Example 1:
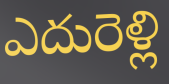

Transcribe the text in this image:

ఎదురెళ్లి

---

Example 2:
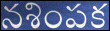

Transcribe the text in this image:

నశింపక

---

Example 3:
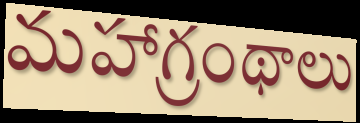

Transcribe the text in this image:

మహాగ్రంథాలు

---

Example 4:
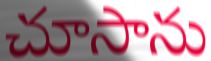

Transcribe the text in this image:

చూసాను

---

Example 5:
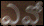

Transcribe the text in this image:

ఎవో